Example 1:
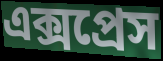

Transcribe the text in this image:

এক্সপ্রেস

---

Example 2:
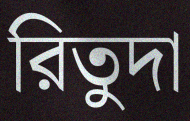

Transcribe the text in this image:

রিতুদা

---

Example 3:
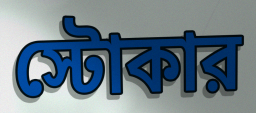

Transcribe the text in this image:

স্টোকার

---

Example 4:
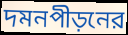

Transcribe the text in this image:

দমনপীড়নের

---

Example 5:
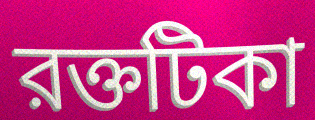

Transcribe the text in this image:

রক্তটিকা